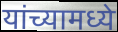
यांच्यामध्ये